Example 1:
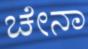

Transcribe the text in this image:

ಚೇನಾ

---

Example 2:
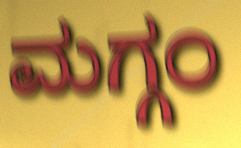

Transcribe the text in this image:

ಮಗ್ಗಂ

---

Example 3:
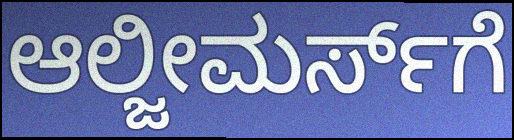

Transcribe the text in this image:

ಆಲ್ಜೀಮರ್ಸ್‌ಗೆ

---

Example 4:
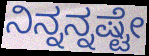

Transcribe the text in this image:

ನಿನ್ನನ್ನಷ್ಟೇ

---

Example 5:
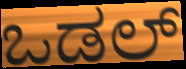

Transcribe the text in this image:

ಒಡಲ್